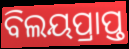
ବିଲୟପ୍ରାପ୍ତ